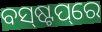
ବସ୍‌ଷ୍ଟପ୍‌ରେ